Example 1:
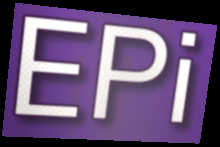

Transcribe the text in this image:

EPi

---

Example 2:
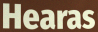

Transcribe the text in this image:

Hearas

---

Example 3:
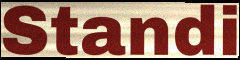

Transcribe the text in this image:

Standi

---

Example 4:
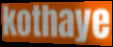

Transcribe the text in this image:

kothaye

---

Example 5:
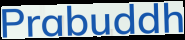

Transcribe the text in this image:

Prabuddh